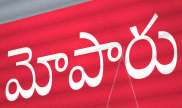
మోపారు